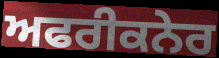
ਅਫਰੀਕਨੇਰ